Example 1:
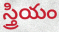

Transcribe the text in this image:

స్త్రియం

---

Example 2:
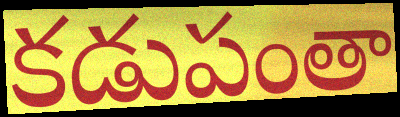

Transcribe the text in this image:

కడుపంతా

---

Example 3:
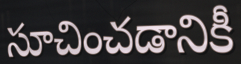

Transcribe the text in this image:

సూచించడానికీ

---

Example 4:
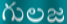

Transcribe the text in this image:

గులజ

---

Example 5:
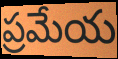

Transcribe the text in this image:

ప్రమేయ